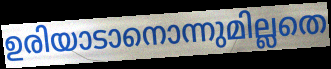
ഉരിയാടാനൊന്നുമില്ലതെ